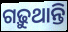
ଗଢ଼ୁଥାନ୍ତି